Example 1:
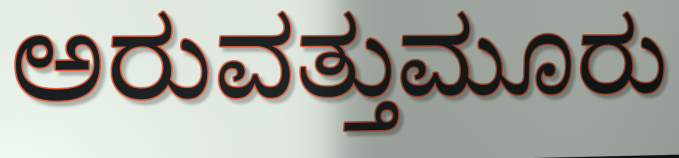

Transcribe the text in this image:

ಅರುವತ್ತುಮೂರು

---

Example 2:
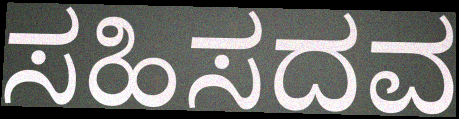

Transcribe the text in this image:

ಸಹಿಸದವ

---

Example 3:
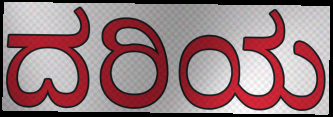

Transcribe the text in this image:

ದರಿಯ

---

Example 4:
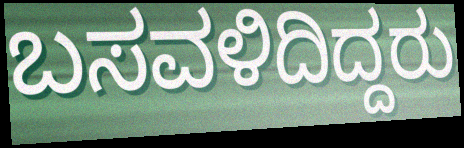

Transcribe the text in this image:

ಬಸವಳಿದಿದ್ದರು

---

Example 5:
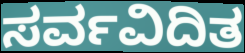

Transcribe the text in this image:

ಸರ್ವವಿದಿತ